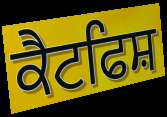
ਕੈਟਫਿਸ਼